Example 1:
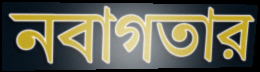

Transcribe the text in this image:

নবাগতার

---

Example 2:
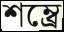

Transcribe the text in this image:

শম্ব্রে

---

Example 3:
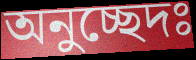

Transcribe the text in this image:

অনুচ্ছেদঃ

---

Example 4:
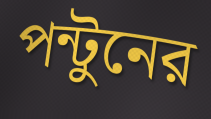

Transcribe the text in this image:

পন্টুনের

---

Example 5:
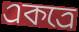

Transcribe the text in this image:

একত্রে